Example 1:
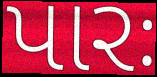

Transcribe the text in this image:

પારઃ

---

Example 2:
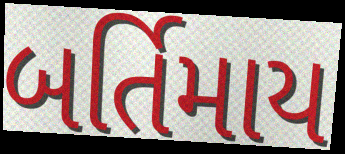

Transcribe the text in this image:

બર્તિમાય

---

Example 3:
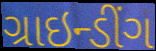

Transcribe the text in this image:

ગ્રાઇન્ડીંગ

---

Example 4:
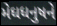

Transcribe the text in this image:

મેઘધનુષને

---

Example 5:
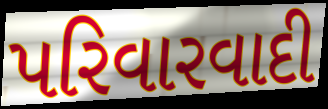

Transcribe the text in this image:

પરિવારવાદી